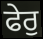
ਫੇਰੁ